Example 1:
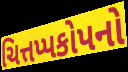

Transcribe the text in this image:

ચિત્તપ્પકોપનો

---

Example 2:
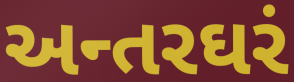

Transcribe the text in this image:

અન્તરઘરં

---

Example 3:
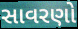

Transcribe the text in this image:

સાવરણો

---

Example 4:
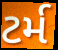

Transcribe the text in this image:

ટર્મ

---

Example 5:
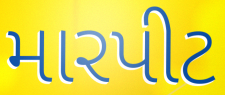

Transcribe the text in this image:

મારપીટ